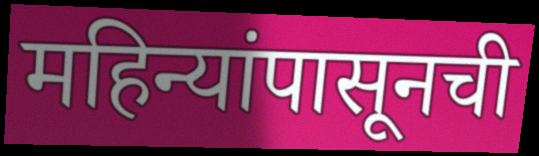
महिन्यांपासूनची